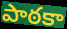
పాఠకా